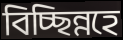
বিচ্ছিন্নহে